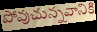
పోవుచున్నవానికి